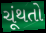
ચૂંથતો